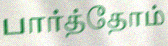
பார்த்தோம்